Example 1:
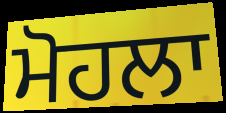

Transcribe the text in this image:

ਮੋਹਲਾ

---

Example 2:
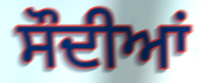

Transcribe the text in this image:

ਸੌਦੀਆਂ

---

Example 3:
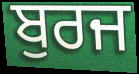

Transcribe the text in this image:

ਬੁਰਜ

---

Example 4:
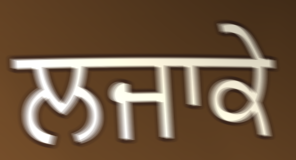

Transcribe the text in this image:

ਲਜਾਕੇ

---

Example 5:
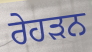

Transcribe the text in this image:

ਰੇਹੜਨ